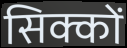
सिक्कों